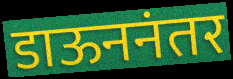
डाऊननंतर